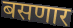
बसणार